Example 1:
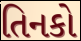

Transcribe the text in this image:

તિનકો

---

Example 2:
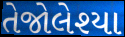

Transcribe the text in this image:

તેજોલેશ્યા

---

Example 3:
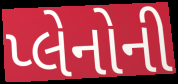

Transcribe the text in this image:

પ્લેનોની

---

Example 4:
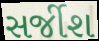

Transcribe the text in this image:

સર્જીશ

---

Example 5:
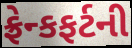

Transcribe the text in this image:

ફ્રેન્કફર્ટની